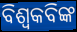
ବିଶ୍ୱକବିଙ୍କ